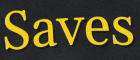
Saves